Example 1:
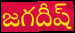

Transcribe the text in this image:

జగదీష్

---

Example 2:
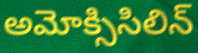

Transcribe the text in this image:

అమోక్సిసిలిన్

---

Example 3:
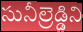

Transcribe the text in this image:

సునీల్రెడ్డిని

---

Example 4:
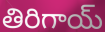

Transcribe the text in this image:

తిరిగాయ్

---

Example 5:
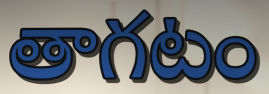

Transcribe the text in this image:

తాగటం